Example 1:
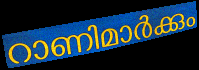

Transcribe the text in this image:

റാണിമാർക്കും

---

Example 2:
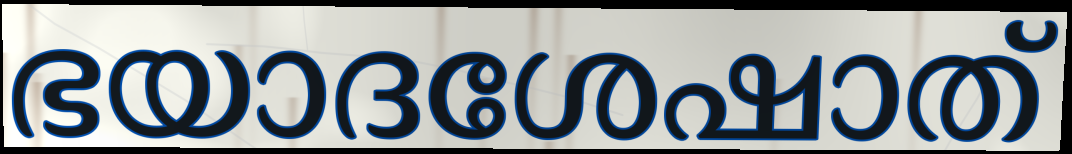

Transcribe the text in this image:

ഭയാദശേഷാത്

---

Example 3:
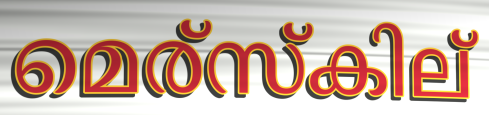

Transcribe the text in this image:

മെര്സ്കില്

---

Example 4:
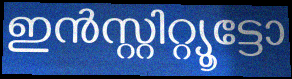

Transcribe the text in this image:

ഇൻസ്റ്റിറ്റ്യൂട്ടോ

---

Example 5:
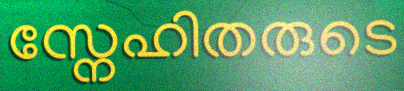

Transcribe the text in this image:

സ്നേഹിതരുടെ